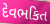
દેવભકિત